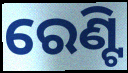
ରେଣ୍ଟି